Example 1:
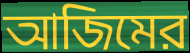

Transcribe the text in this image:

আজিমের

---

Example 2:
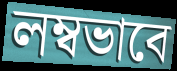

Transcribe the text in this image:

লম্বভাবে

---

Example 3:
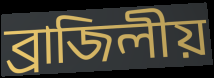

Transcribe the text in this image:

ব্রাজিলীয়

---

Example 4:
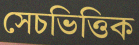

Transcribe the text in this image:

সেচভিত্তিক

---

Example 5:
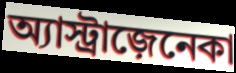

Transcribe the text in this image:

অ্যাস্ট্রাজ়েনেকা